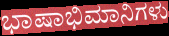
ಭಾಷಾಭಿಮಾನಿಗಳು